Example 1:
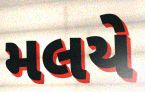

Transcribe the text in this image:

મલયે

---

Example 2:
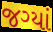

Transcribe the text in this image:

જગ્યાં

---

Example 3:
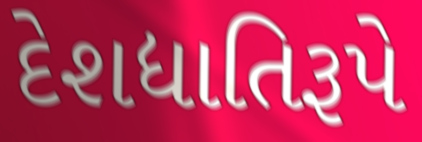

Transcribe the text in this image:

દેશદ્યાતિરૂપે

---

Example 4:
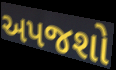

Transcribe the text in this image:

અપજશો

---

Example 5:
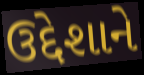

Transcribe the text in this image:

ઉદ્દેશાને